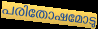
പരിതോഷമോടു